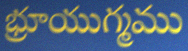
భ్రూయుగ్మము